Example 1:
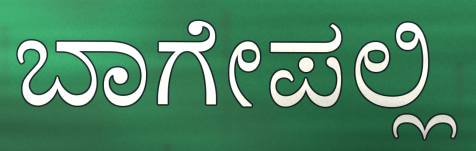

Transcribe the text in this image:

ಬಾಗೇಪಲ್ಲಿ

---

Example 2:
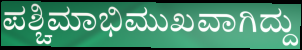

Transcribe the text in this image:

ಪಶ್ಚಿಮಾಭಿಮುಖವಾಗಿದ್ದು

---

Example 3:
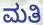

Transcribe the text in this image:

ಮತಿ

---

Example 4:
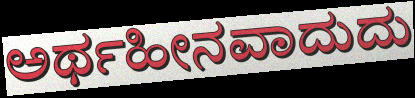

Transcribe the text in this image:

ಅರ್ಥಹೀನವಾದುದು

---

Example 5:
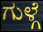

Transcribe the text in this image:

ಗುಳ್ಗೆ